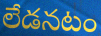
లేడనటం